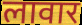
लावार